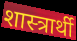
शास्त्रार्थी